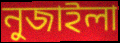
নুজাইলা